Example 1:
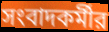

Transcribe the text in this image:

সংবাদকর্মীর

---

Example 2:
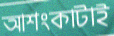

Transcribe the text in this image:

আশংকাটাই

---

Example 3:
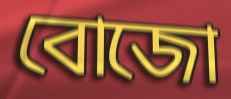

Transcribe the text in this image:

বোজো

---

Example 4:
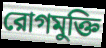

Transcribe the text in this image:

রোগমুক্তি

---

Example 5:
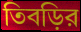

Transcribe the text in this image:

তিবড়ির